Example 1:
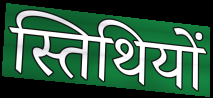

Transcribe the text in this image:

स्तिथियों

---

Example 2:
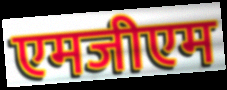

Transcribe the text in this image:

एमजीएम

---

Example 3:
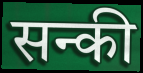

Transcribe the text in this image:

सन्की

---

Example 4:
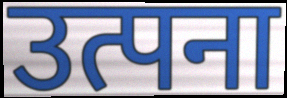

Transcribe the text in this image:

उत्पना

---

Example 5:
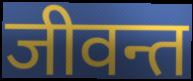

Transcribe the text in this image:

जीवन्त